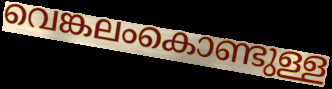
വെങ്കലംകൊണ്ടുള്ള